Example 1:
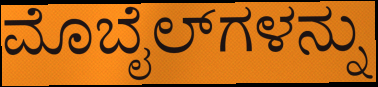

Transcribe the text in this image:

ಮೊಬೈಲ್‌ಗಳನ್ನು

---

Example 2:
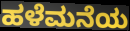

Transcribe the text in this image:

ಹಳೆಮನೆಯ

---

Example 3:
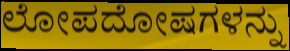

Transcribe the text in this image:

ಲೋಪದೋಷಗಳನ್ನು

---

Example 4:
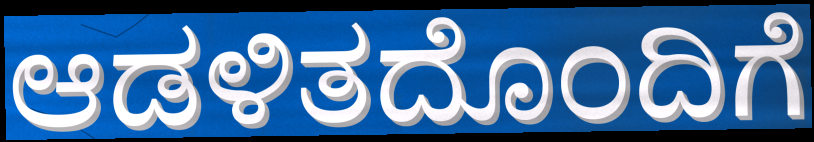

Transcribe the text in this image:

ಆಡಳಿತದೊಂದಿಗೆ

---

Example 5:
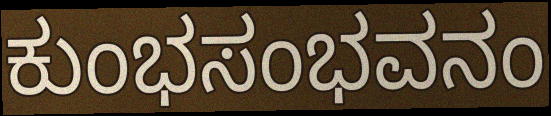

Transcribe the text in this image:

ಕುಂಭಸಂಭವನಂ